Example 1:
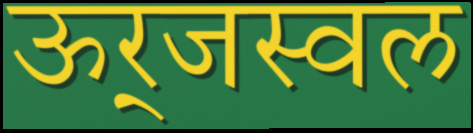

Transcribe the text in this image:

ऊर्जस्वल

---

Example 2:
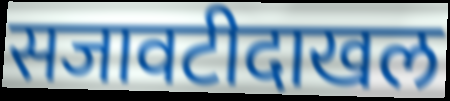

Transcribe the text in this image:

सजावटीदाखल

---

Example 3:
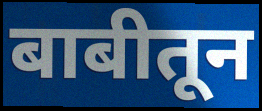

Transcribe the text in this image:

बाबीतून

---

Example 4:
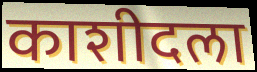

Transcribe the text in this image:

काशीदला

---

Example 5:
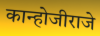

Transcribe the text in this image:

कान्होजीराजे